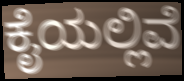
ಕೈಯಲ್ಲಿವೆ